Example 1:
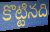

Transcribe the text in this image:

కొట్టినది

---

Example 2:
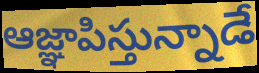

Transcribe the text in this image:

ఆజ్ఞాపిస్తున్నాడే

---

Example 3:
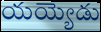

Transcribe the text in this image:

యయ్యెడు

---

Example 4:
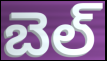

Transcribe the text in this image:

బెల్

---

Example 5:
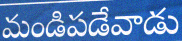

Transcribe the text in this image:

మండిపడేవాడు